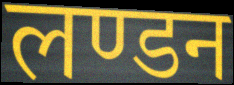
लण्डन